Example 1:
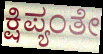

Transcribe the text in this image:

ಕ್ಷಿಪ್ಯಂತೇ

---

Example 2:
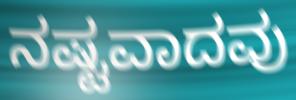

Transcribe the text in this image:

ನಷ್ಟವಾದವು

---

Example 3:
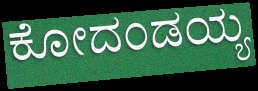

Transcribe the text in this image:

ಕೋದಂಡಯ್ಯ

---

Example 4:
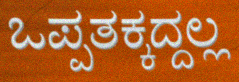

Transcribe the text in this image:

ಒಪ್ಪತಕ್ಕದ್ದಲ್ಲ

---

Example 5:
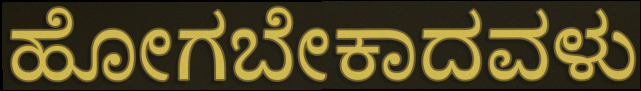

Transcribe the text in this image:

ಹೋಗಬೇಕಾದವಳು